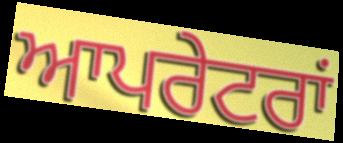
ਆਪਰੇਟਰਾਂ